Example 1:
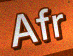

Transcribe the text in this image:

Afr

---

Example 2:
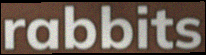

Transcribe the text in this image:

rabbits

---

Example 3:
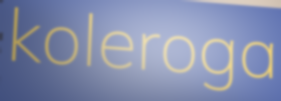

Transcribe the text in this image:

koleroga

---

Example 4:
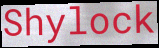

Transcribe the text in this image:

Shylock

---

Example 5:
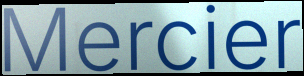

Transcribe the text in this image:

Mercier